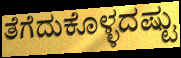
ತೆಗೆದುಕೊಳ್ಳದಷ್ಟು